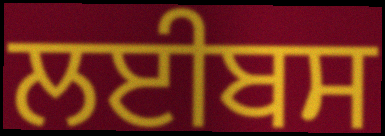
ਲਈਬਸ